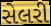
સેલરી